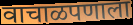
वाचाळपणाला